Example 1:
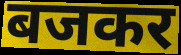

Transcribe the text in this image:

बजकर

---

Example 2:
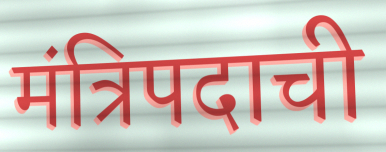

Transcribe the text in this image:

मंत्रिपदाची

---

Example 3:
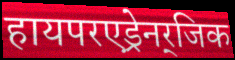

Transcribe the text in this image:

हायपरएड्रेनर्जिक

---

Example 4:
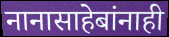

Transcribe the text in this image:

नानासाहेबांनाही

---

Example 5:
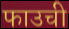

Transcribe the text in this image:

फाउची